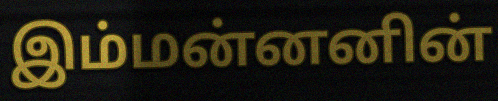
இம்மன்னனின்